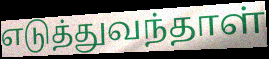
எடுத்துவந்தாள்